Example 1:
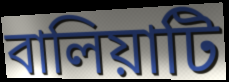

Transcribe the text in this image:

বালিয়াটি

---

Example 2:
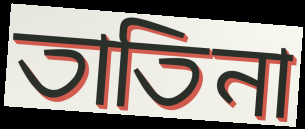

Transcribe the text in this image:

তাতিনা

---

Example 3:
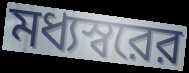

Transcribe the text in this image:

মধ্যস্বরের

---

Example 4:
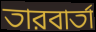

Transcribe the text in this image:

তারবার্তা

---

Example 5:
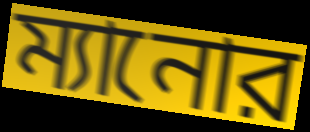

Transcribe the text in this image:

ম্যানোর